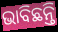
ଭାବିଛନ୍ତି